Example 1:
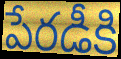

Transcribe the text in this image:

పేరడీకి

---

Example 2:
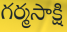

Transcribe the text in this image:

గర్మసాక్షి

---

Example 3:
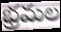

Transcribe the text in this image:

భ్రమల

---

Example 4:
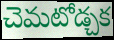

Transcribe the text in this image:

చెమటోడ్చక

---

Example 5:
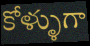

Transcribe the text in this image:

కోళ్ళుగా